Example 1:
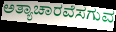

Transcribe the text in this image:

ಅತ್ಯಾಚಾರವೆಸಗುವ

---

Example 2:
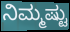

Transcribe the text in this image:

ನಿಮ್ಮಷ್ಟು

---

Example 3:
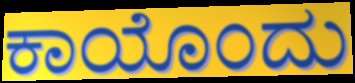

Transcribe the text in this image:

ಕಾಯೊಂದು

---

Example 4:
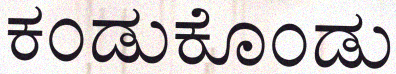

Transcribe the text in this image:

ಕಂಡುಕೊಂಡು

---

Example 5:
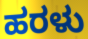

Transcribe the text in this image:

ಹರಳು